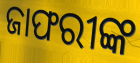
ଜାଫରୀଙ୍କ